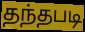
தந்தபடி